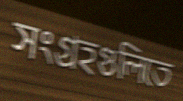
সংগ্রহগুলিতে